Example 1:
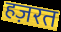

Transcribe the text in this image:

हज़रत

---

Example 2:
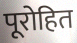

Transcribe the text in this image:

पूरोहित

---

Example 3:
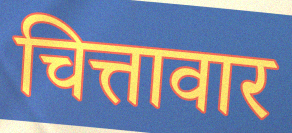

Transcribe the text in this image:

चित्तावार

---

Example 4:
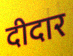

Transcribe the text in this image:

दीदार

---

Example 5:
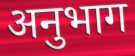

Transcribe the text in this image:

अनुभाग